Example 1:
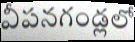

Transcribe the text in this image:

వీపనగండ్లలో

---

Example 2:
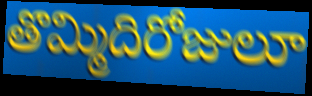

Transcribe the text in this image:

తొమ్మిదిరోజులూ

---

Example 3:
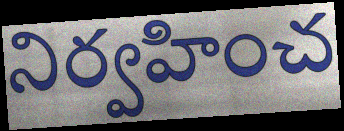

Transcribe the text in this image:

నిర్వహించ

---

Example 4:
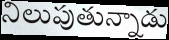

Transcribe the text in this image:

నిలుపుతున్నాడు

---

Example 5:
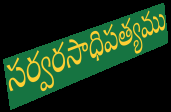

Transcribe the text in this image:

సర్వరసాధిపత్యము